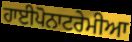
ਹਾਈਪੋਨਾਟਰੇਮੀਆ